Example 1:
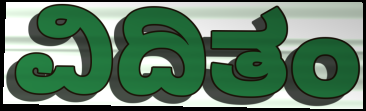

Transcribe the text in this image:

ವಿದಿತಂ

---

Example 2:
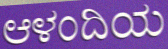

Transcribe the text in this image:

ಆಳಂದಿಯ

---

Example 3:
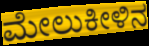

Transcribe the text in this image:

ಮೇಲುಕೀಳಿನ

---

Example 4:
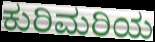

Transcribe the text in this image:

ಕುರಿಮರಿಯ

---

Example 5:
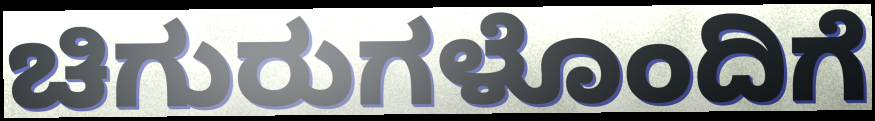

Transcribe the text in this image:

ಚಿಗುರುಗಳೊಂದಿಗೆ